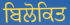
ਬਿਲੋਕਿਤ